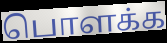
பொளக்க